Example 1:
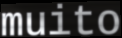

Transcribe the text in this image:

muito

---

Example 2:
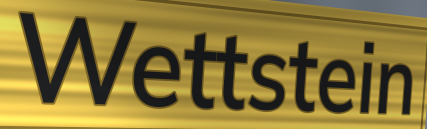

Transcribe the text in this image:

Wettstein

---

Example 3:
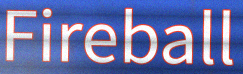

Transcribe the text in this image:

Fireball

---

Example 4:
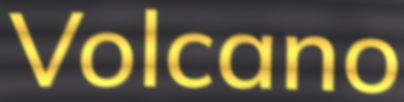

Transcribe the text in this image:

Volcano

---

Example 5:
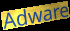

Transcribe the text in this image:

Adware